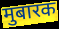
मुबारक